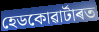
হেডকোৱাৰ্টাৰত